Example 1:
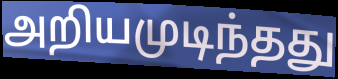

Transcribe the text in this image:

அறியமுடிந்தது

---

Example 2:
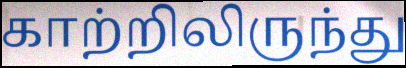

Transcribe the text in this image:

காற்றிலிருந்து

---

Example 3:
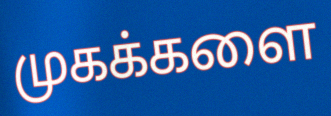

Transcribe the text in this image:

முகக்களை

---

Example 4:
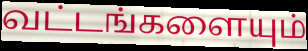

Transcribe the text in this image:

வட்டங்களையும்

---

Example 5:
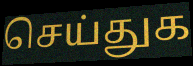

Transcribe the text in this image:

செய்துக